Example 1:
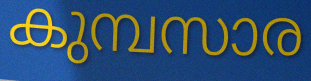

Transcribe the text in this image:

കുമ്പസാര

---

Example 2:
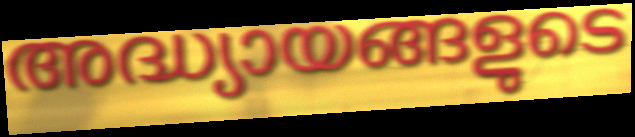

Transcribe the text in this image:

അദ്ധ്യായങ്ങളുടെ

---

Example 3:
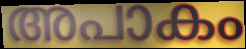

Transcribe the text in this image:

അപാകം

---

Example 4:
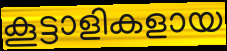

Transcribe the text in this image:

കൂട്ടാളികളായ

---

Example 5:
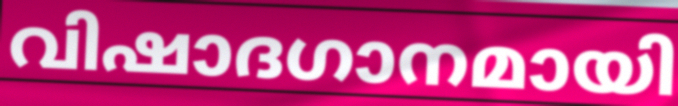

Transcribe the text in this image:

വിഷാദഗാനമായി